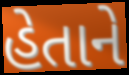
હેતાને